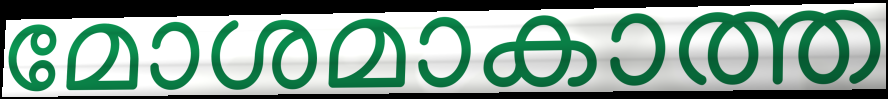
മോശമാകാത്ത